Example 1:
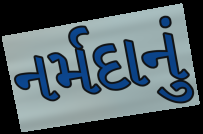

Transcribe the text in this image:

નર્મદાનું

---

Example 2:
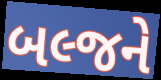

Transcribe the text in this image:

બલ્જને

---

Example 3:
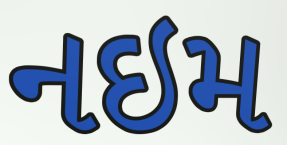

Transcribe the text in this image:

નઇમ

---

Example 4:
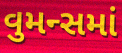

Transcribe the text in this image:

વુમન્સમાં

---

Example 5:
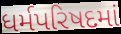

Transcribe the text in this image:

ધર્મપરિષદમાં